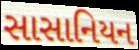
સાસાનિયન